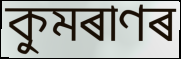
কুমৰাণৰ